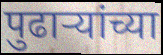
पुढाऱ्यांच्या